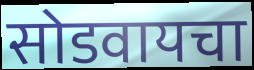
सोडवायचा